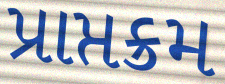
પ્રાપ્તક્રમ